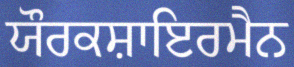
ਯੌਰਕਸ਼ਾਇਰਮੈਨ